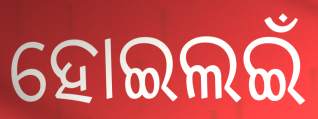
ହୋଇଲଇଁ